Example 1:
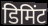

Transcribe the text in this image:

डिमिंट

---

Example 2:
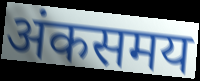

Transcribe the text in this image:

अंकसमय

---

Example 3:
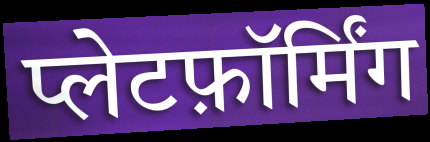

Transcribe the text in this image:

प्लेटफ़ॉर्मिंग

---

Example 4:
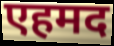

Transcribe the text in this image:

एहमद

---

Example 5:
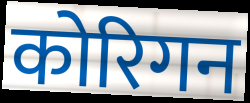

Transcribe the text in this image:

कोरिगन